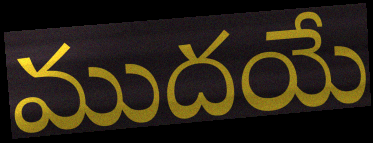
ముదయే